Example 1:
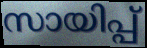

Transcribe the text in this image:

സായിപ്പ്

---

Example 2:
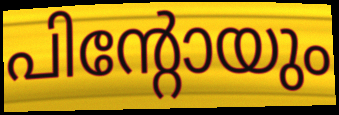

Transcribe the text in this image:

പിന്റോയും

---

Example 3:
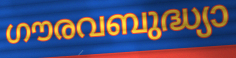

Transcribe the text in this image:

ഗൗരവബുദ്ധ്യാ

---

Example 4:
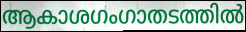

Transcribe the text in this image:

ആകാശഗംഗാതടത്തിൽ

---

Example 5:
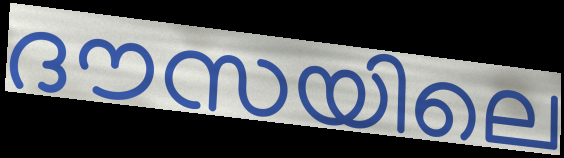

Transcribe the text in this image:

ദൗസയിലെ